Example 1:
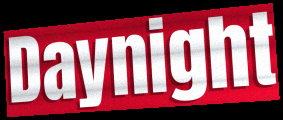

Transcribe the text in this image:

Daynight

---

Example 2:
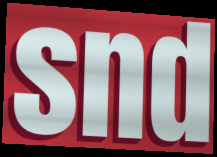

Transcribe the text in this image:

snd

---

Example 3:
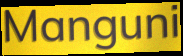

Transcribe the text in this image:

Manguni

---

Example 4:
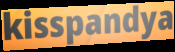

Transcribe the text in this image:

kisspandya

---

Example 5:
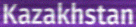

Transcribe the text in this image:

Kazakhstan